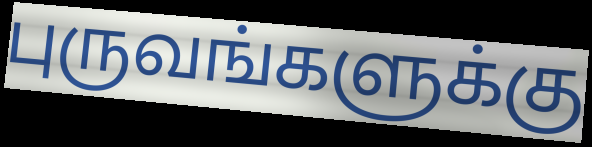
புருவங்களுக்கு